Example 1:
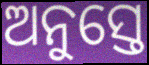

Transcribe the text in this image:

ଅନୁସ୍ତେ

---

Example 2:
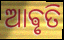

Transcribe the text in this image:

ଆଵୃତି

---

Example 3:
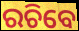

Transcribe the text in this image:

ରଚିବେ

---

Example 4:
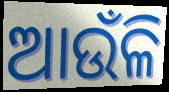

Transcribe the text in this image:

ଆଉଁଳି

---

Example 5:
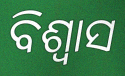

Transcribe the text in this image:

ବିଶ୍ଵାସ